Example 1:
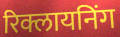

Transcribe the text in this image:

रिक्लायनिंग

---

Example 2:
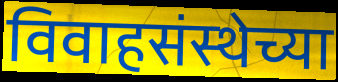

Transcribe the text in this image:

विवाहसंस्थेच्या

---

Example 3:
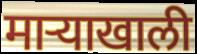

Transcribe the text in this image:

माऱ्याखाली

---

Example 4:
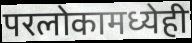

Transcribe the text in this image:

परलोकामध्येही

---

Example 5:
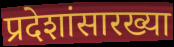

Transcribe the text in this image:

प्रदेशांसारख्या